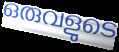
ഒരുവളുടെ